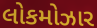
લોકમોઝાર